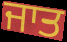
ਜਾਤ